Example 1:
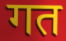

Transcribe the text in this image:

गत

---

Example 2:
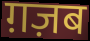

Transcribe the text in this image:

ग़ज़ब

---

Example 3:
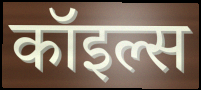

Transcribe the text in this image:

कॉइल्स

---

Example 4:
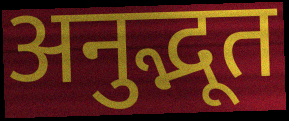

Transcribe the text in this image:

अनुद्भूत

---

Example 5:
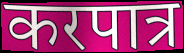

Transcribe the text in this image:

करपात्र